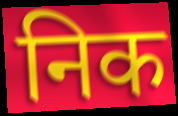
निक